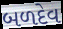
બળદેવ